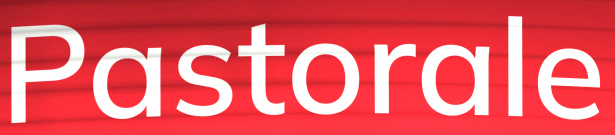
Pastorale